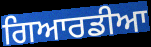
ਗਿਆਰਡੀਆ